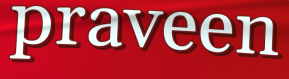
praveen